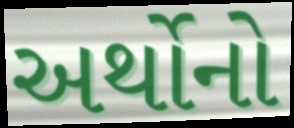
અર્થોનો